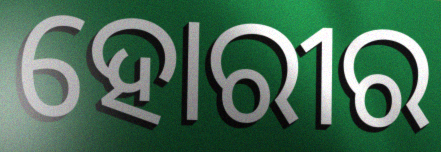
ହୋରୀର